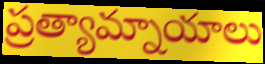
ప్రత్యామ్నాయాలు